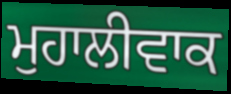
ਮੁਹਾਲੀਵਾਕ